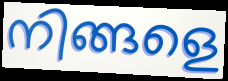
നിങ്ങളെ